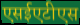
एसईएटीएस